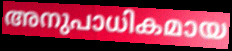
അനുപാധികമായ